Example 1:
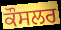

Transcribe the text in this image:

ਕੌਸਲਰ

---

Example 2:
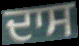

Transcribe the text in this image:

ਦਾਸ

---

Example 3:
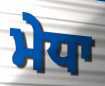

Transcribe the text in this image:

ਮੇਧਾ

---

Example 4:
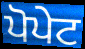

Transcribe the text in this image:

ਪੋਪੇਟ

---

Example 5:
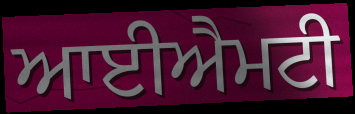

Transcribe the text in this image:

ਆਈਐਮਟੀ